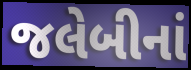
જલેબીનાં